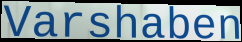
Varshaben